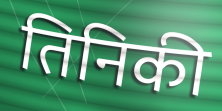
तिनिकी